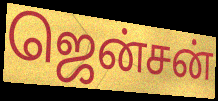
ஜென்சன்